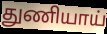
துணியாய்